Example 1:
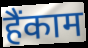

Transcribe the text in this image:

हैंकाम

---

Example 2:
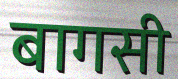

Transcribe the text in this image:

बागसी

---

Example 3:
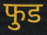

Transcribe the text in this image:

फुड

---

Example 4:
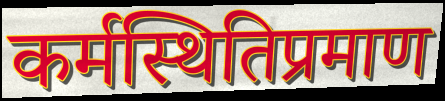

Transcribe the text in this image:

कर्मस्थितिप्रमाण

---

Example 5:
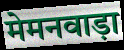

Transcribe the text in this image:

मेमनवाड़ा